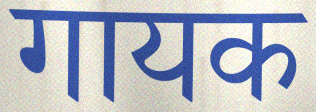
गायक